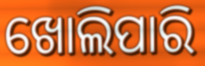
ଖୋଲିପାରି